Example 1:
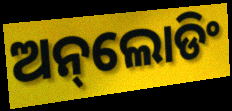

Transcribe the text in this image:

ଅନ୍‌ଲୋଡିଂ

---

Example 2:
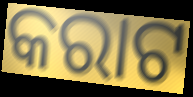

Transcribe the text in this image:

କରାଟ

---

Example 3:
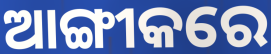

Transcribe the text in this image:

ଆଙ୍ଗୀକରେ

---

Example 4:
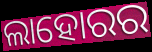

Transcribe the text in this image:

ଲାହୋରର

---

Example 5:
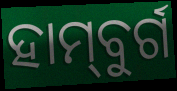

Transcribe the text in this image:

ହାମ୍‌ବୁର୍ଗ